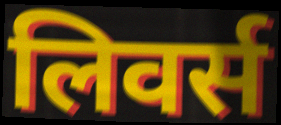
लिवर्स